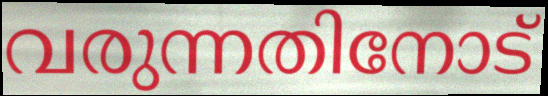
വരുന്നതിനോട്